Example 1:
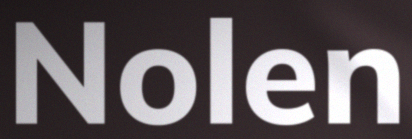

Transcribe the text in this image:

Nolen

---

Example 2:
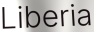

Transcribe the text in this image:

Liberia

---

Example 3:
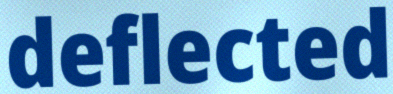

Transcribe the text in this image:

deflected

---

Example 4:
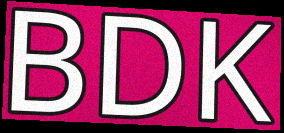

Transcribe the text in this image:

BDK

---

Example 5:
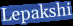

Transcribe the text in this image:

Lepakshi